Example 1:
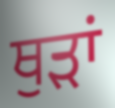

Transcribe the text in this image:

ਥੁੜਾਂ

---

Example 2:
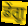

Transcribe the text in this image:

ਡੇਂਗੂ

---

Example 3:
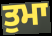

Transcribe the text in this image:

ਤੁਮਾ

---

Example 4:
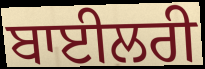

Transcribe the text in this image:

ਬਾਈਲਰੀ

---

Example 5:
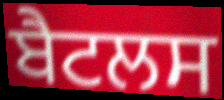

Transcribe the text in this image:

ਬੈਟਲਸ